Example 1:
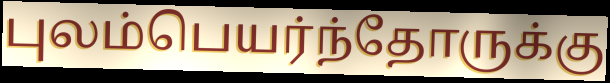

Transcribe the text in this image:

புலம்பெயர்ந்தோருக்கு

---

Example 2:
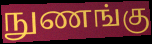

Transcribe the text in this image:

நுணங்கு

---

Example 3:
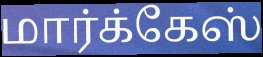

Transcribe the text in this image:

மார்க்கேஸ்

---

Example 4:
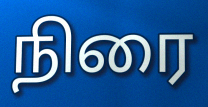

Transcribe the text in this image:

நிரை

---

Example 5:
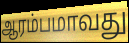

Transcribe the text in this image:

ஆரம்பமாவது